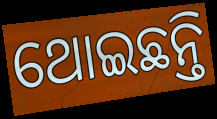
ଥୋଇଛନ୍ତି